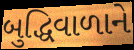
બુદ્ધિવાળાને